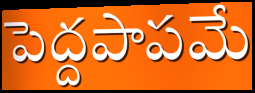
పెద్దపాపమే